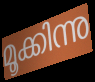
മൂക്കിന്നു